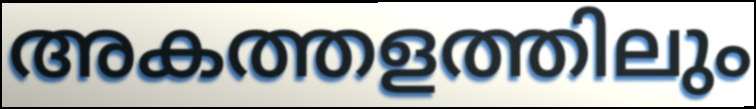
അകത്തളത്തിലും